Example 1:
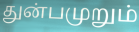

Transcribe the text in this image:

துன்பமுறும்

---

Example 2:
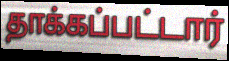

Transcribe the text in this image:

தாக்கப்பட்டார்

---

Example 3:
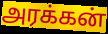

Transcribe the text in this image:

அரக்கன்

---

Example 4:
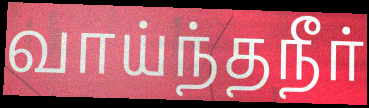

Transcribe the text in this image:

வாய்ந்தநீர்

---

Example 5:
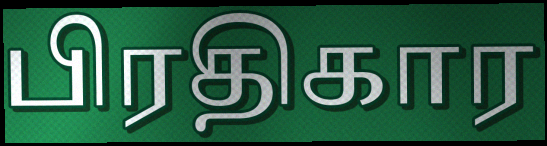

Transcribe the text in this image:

பிரதிகார